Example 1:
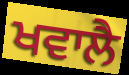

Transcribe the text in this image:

ਖਵਾਲੈ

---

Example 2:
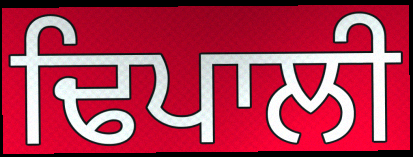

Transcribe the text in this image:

ਢਿਪਾਲੀ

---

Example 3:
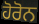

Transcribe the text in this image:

ਹੋਰੋਨ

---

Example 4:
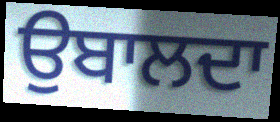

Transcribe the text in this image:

ਉਬਾਲਦਾ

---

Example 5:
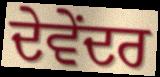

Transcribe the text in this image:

ਦੇਵੇਂਦਰ